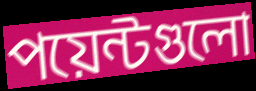
পয়েন্টগুলো